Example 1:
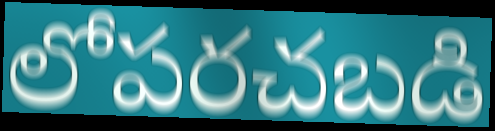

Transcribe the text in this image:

లోపరచబడి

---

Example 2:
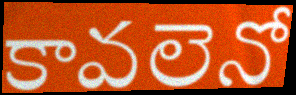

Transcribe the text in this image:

కావలెనో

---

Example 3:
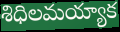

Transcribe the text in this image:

శిధిలమయ్యాక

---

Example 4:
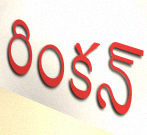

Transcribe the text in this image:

రింకన్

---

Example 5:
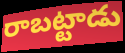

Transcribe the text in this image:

రాబట్టాడు